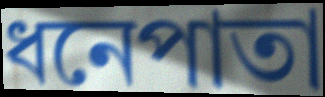
ধনেপাতা